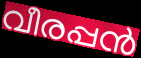
വീരപ്പൻ